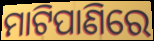
ମାଟିପାଣିରେ